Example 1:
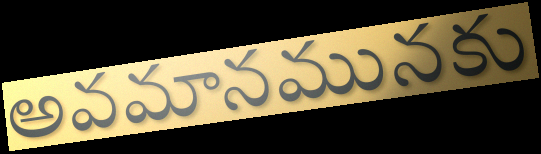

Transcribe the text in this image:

అవమానమునకు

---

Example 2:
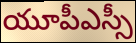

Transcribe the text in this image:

యూపీఎస్సీ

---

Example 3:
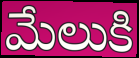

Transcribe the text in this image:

మేలుకి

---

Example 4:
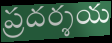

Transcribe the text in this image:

ప్రదర్శయ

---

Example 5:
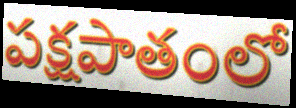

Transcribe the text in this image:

పక్షపాతంలో